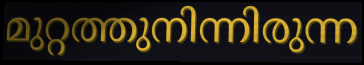
മുറ്റത്തുനിന്നിരുന്ന